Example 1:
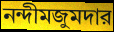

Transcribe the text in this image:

নন্দীমজুমদার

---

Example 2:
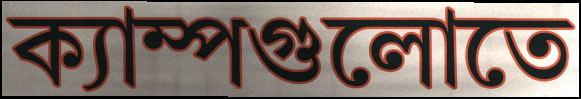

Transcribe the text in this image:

ক্যাম্পগুলোতে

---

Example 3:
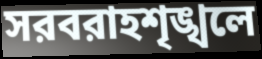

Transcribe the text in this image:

সরবরাহশৃঙ্খলে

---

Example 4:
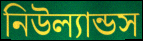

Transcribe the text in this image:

নিউল্যান্ডস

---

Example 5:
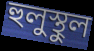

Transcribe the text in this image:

হুলুস্থুল